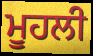
ਮੂਹਲੀ